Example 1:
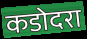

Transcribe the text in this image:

कडोदरा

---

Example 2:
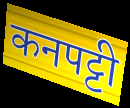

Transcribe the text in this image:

कनपट्टी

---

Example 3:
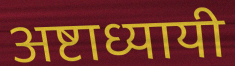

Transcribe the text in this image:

अष्टाध्यायी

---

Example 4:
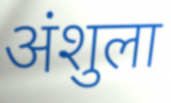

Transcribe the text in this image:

अंशुला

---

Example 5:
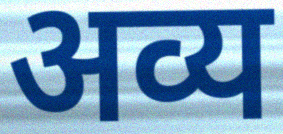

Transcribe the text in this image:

अव्य